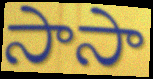
సాసా